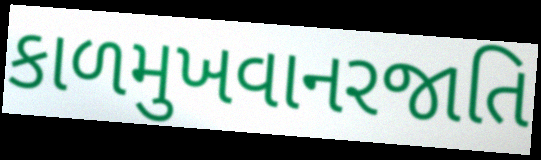
કાળમુખવાનરજાતિ